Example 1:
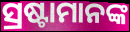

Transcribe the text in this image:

ସ୍ରଷ୍ଟାମାନଙ୍କ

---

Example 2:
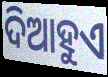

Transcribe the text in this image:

ଦିଆହୁଏ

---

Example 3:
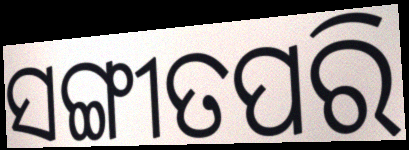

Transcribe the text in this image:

ସଙ୍ଗୀତପରି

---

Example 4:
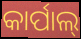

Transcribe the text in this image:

କାର୍ପାଲ୍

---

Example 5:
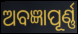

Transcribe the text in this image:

ଅବଜ୍ଞାପୂର୍ଣ୍ଣ